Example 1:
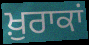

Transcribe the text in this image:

ਖ਼ੁਰਾਕਾਂ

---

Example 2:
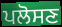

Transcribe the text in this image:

ਪਲੋਸਣ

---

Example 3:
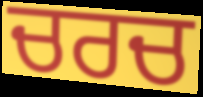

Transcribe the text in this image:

ਚਰਚ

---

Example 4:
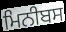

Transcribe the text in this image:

ਮਿਨੀਬਸ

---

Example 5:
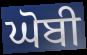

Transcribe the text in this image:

ਘੋਬੀ